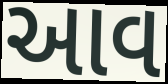
આવ